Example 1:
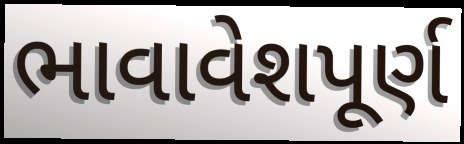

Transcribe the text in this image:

ભાવાવેશપૂર્ણ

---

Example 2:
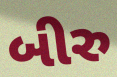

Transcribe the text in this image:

બીરુ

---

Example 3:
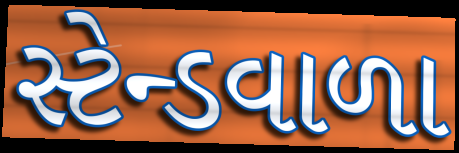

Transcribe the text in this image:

સ્ટેન્ડવાળા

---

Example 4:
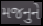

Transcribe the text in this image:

મજનુને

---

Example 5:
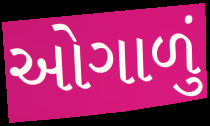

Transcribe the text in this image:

ઓગાળું